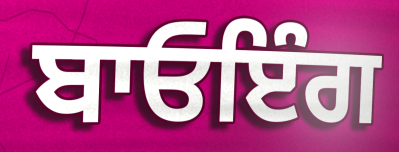
ਬਾਓਇੰਗ